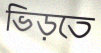
ভিড়তে